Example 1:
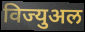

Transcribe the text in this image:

विज्युअल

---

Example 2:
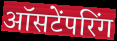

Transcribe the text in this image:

ऑसटेंपरिंग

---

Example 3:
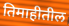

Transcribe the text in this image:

तिमाहीतील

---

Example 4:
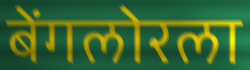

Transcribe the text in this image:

बेंगलोरला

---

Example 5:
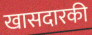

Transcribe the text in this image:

खासदारकी